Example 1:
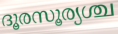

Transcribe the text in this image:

ദൂരസൂര്യശ്ച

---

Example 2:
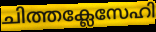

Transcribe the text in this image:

ചിത്തക്ലേസേഹി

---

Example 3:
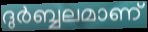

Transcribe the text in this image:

ദുർബ്ബലമാണ്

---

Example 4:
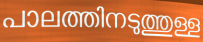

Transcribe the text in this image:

പാലത്തിനടുത്തുള്ള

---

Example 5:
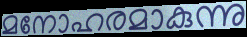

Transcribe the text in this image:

മനോഹരമാകുന്നു